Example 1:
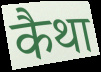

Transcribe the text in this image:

कैथा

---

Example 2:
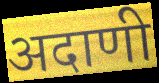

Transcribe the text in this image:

अदाणी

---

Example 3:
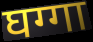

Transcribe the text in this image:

घग्गा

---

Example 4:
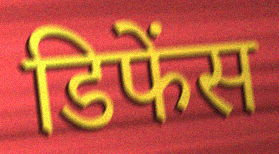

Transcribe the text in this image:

डिफेंस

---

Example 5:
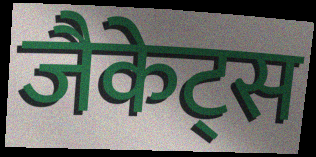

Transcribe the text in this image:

जैकेट्स